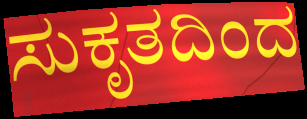
ಸುಕೃತದಿಂದ